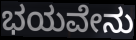
ಭಯವೇನು